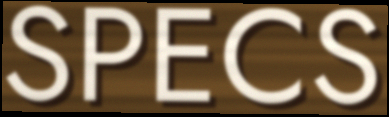
SPECS